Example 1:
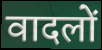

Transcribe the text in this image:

वादलों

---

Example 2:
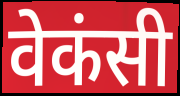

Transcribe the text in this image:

वेकंसी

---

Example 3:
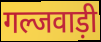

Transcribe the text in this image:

गल्जवाड़ी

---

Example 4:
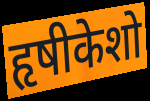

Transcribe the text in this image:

हृषीकेशो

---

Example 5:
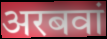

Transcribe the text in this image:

अरबवां